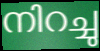
നിറച്ചു